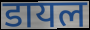
डायल